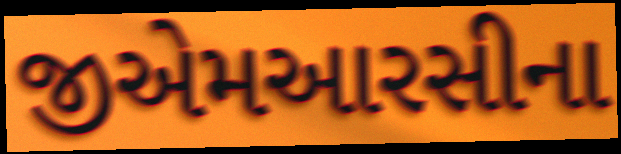
જીએમઆરસીના